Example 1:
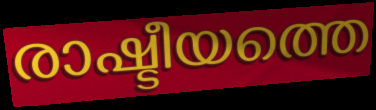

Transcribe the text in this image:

രാഷ്ടീയത്തെ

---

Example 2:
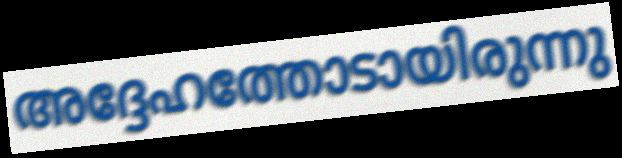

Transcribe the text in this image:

അദ്ദേഹത്തോടായിരുന്നു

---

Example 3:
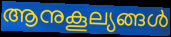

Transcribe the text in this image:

ആനുകൂല്യങ്ങൾ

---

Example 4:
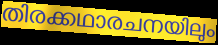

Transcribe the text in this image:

തിരക്കഥാരചനയിലും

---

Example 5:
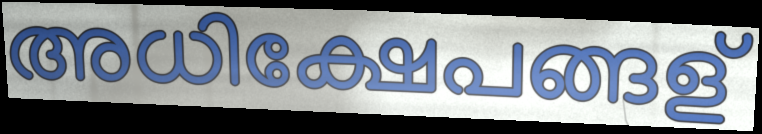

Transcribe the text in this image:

അധിക്ഷേപങ്ങള്